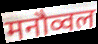
मनौव्वल